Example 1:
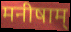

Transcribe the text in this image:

मनीषाम्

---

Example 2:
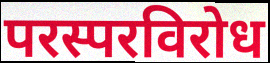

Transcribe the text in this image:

परस्परविरोध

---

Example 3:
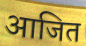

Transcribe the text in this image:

आजित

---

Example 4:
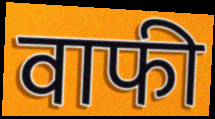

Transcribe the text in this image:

वाफी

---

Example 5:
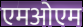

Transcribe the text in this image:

एमओएम